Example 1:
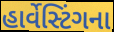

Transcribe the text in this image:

હાર્વેસ્ટિંગના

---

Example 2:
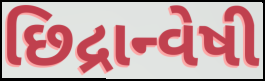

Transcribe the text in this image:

છિદ્રાન્વેષી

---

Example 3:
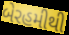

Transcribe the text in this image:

બેરહમીથી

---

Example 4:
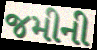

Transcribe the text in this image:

જમીની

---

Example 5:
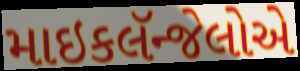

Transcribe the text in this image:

માઇકલૅન્જેલોએ